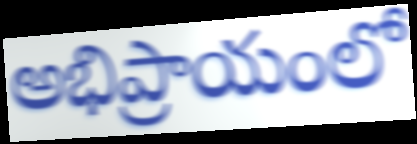
అభిప్రాయంలో